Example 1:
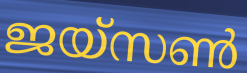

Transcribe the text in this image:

ജയ്സൺ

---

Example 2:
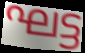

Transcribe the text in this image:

ഘട്ട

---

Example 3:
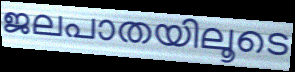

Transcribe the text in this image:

ജലപാതയിലൂടെ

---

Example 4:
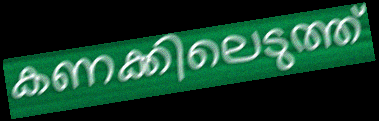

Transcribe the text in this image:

കണക്കിലെടുത്ത്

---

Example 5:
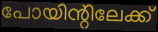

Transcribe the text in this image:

പോയിന്റിലേക്ക്